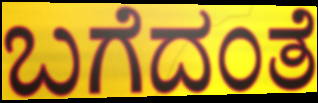
ಬಗೆದಂತೆ